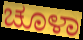
ಚೂಳಾ